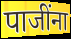
पाजींना